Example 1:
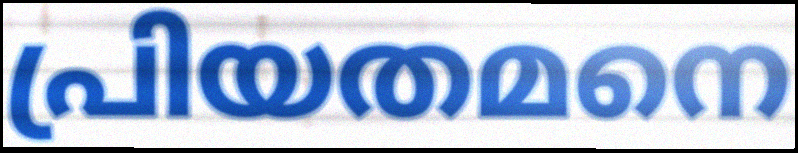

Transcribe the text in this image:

പ്രിയതമനെ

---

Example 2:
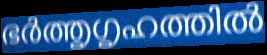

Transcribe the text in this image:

ഭർത്തൃഗൃഹത്തിൽ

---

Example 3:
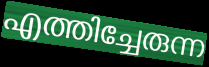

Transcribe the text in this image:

എത്തിച്ചേരുന്ന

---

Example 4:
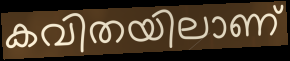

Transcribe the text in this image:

കവിതയിലാണ്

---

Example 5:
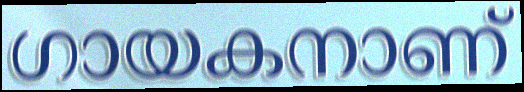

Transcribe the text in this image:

ഗായകനാണ്